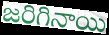
జరిగినాయి